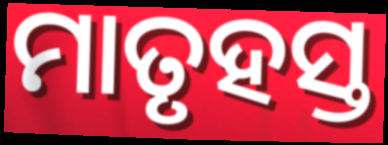
ମାତୃହସ୍ତ